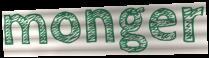
monger